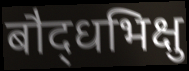
बौद्धभिक्षु